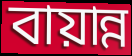
বায়ান্ন